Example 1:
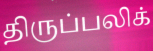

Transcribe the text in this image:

திருப்பலிக்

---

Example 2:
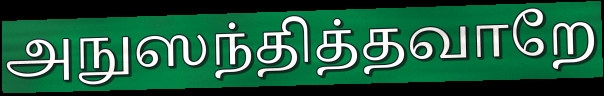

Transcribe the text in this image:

அநுஸந்தித்தவாறே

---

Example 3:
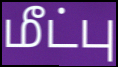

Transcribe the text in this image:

மீட்பு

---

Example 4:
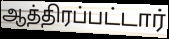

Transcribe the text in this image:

ஆத்திரப்பட்டார்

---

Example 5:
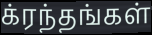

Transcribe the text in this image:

க்ரந்தங்கள்